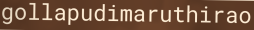
gollapudimaruthirao